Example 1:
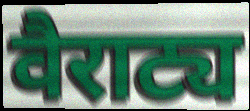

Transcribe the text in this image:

वैराट्य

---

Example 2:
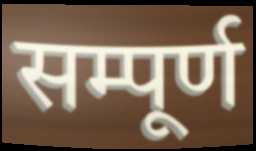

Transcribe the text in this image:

सम्‍पूर्ण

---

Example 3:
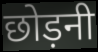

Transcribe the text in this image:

छोड़नी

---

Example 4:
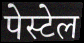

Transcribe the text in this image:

पेस्टेल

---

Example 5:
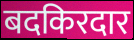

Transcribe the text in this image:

बदकिरदार